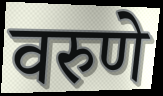
वरुणे